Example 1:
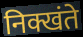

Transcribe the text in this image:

निक्खंते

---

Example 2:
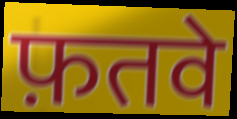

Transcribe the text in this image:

फ़तवे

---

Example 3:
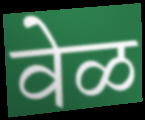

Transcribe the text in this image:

वेळ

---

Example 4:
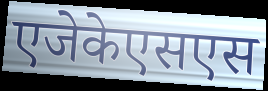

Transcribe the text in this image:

एजेकेएसएस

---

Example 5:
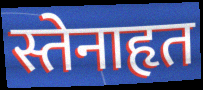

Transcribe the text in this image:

स्तेनाहृत